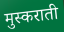
मुस्कराती